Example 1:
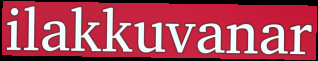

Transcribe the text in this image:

ilakkuvanar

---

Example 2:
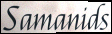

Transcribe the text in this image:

Samanids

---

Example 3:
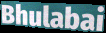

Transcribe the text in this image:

Bhulabai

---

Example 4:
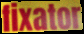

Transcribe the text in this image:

fixator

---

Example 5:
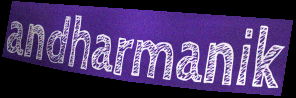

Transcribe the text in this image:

andharmanik